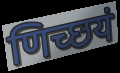
णिच्छयं